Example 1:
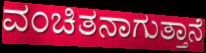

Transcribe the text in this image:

ವಂಚಿತನಾಗುತ್ತಾನೆ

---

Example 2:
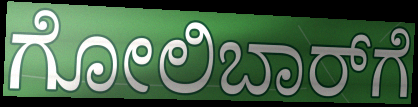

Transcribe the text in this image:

ಗೋಲಿಬಾರ್‌ಗೆ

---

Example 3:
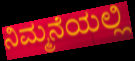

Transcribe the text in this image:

ನಿಮ್ಮನೆಯಲ್ಲಿ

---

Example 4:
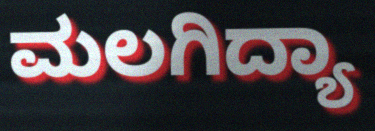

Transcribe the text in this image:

ಮಲಗಿದ್ಯಾ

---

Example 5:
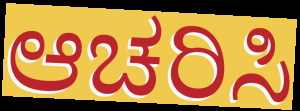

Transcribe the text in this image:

ಆಚರಿಸಿ